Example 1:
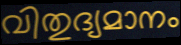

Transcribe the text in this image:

വിതുദ്യമാനം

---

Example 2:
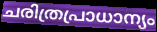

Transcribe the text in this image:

ചരിത്രപ്രാധാന്യം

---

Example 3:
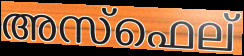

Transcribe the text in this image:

അസ്ഫെല്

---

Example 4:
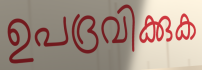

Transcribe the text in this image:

ഉപദ്രവിക്കുക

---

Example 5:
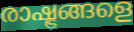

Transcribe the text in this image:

രാഷ്ട്രങ്ങളെ